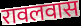
रावलवास